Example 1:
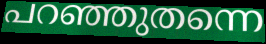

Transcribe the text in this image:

പറഞ്ഞുതന്നെ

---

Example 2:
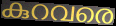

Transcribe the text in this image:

കുറവരെ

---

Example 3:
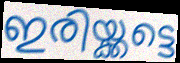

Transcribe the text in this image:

ഇരിയ്ക്കട്ടെ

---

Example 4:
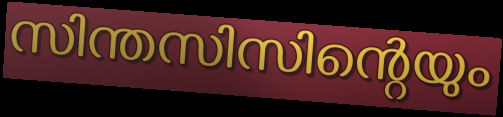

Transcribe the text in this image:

സിന്തസിസിന്റെയും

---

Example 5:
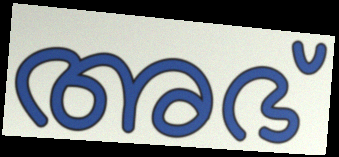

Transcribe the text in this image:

അഭ്